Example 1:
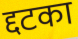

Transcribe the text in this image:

द्दटका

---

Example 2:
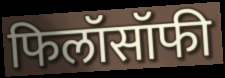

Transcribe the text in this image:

फिलॉसॉफी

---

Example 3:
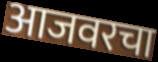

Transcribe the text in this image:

आजवरचा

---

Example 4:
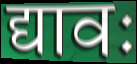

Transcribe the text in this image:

द्यावः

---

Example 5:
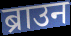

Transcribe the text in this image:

ब्राउन